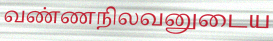
வண்ணநிலவனுடைய